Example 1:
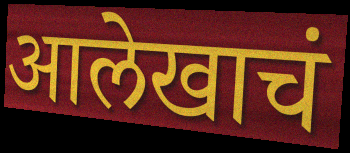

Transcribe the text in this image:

आलेखाचं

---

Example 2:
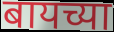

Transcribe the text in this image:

बायच्या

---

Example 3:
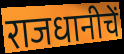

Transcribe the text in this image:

राजधानीचें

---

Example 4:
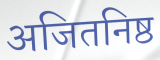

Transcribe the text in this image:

अजितनिष्ठ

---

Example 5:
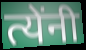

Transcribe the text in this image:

त्येंनी